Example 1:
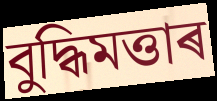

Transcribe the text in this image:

বুদ্ধিমত্তাৰ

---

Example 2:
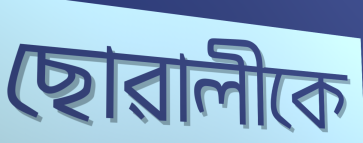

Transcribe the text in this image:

ছোৱালীকে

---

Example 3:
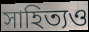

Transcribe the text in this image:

সাহিত্যও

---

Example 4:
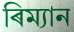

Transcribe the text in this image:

ৰিম্যান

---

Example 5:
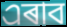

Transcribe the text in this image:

এৰাব